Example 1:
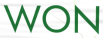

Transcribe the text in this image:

WON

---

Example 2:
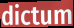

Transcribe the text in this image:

dictum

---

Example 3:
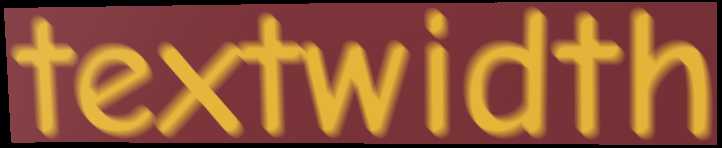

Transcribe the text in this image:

textwidth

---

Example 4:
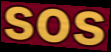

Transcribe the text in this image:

sos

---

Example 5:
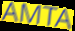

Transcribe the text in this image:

AMTA